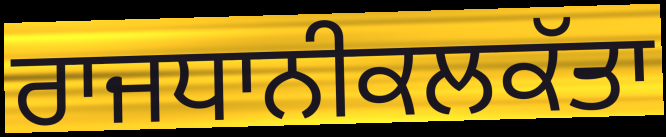
ਰਾਜਧਾਨੀਕਲਕੱਤਾ